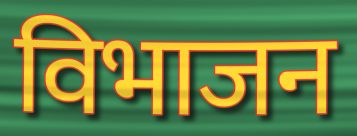
विभाजन